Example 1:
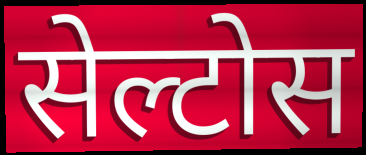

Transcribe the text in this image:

सेल्टोस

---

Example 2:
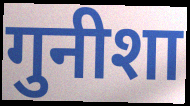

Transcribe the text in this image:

गुनीशा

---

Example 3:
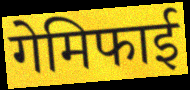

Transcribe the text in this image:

गेमिफाई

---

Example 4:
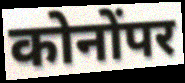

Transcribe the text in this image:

कोनोंपर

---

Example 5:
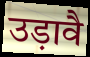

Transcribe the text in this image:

उड़ावै